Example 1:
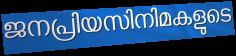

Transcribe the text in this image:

ജനപ്രിയസിനിമകളുടെ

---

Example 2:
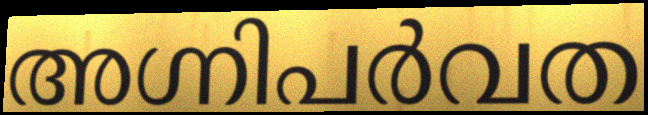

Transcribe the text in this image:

അഗ്നിപർവത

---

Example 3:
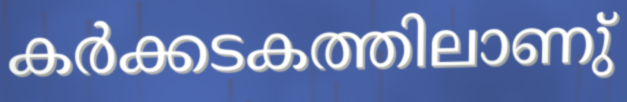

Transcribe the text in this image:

കർക്കടകത്തിലാണു്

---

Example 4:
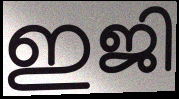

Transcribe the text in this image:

ഇജി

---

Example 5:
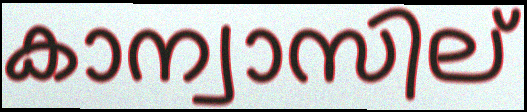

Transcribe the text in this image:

കാന്വാസില്